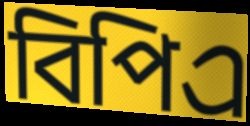
বিপিএ